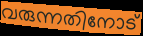
വരുന്നതിനോട്